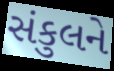
સંકુલને